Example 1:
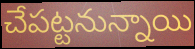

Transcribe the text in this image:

చేపట్టనున్నాయి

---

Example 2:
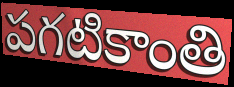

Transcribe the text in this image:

పగటికాంతి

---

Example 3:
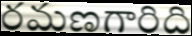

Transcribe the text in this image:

రమణగారిది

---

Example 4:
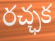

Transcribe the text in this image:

రచ్ఛక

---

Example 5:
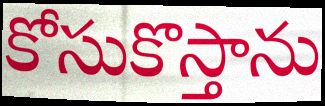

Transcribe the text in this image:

కోసుకొస్తాను